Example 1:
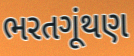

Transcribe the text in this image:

ભરતગૂંથણ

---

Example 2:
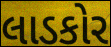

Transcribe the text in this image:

લાડકોર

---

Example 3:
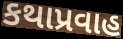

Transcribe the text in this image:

કથાપ્રવાહ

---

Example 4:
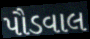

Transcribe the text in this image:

પૌડવાલ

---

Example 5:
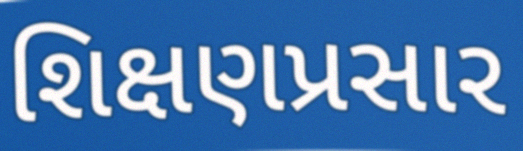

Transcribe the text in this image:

શિક્ષણપ્રસાર